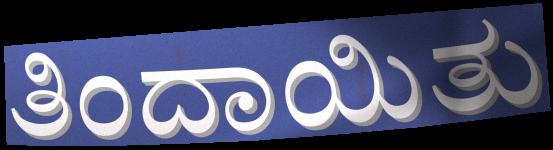
ತಿಂದಾಯಿತು